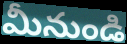
మీనుండి